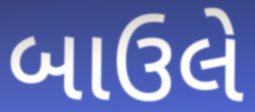
બાઉલે